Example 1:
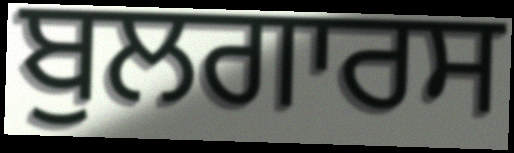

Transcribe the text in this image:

ਬੁਲਗਾਰਸ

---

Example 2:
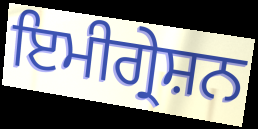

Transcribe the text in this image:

ਇਮੀਗ੍ਰੇਸ਼ਨ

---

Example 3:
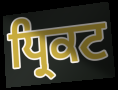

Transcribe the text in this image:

ਧ੍ਰਿਕਟ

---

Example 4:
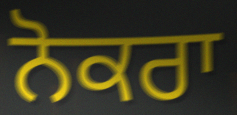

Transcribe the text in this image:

ਨੋਕਰਾ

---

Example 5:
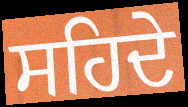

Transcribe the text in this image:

ਸਹਿਦੇ